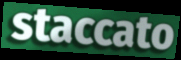
staccato